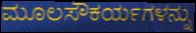
ಮೂಲಸೌಕರ್ಯಗಳನ್ನು